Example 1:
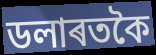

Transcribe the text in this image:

ডলাৰতকৈ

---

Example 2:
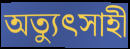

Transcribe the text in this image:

অত্যুৎসাহী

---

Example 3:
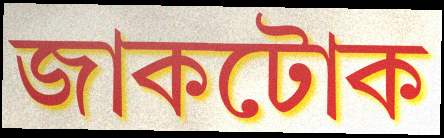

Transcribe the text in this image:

জাকটোক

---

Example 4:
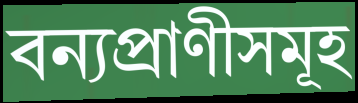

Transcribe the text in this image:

বন্যপ্ৰাণীসমূহ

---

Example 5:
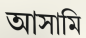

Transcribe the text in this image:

আসামি